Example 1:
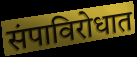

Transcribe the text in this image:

संपाविरोधात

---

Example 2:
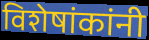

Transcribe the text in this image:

विशेषांकांनी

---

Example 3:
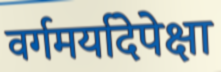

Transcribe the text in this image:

वर्गमर्यादेपेक्षा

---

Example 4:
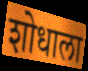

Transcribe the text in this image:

शोधाला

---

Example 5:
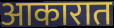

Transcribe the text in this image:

आकारात